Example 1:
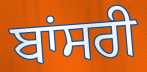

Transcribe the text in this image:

ਬਾਂਸਰੀ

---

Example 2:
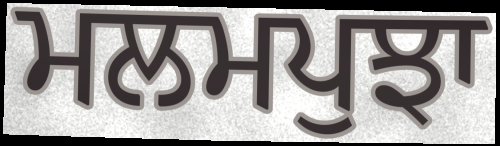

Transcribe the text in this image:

ਮਲਮਪੁਝਾ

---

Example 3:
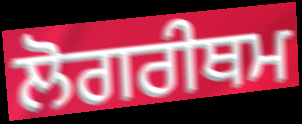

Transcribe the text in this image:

ਲੋਗਰੀਥਮ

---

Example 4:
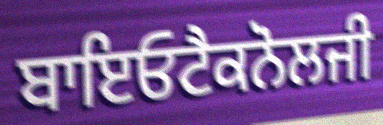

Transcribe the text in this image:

ਬਾਇਓਟੈਕਨੋਲਜੀ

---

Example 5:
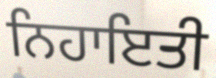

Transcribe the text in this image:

ਨਿਹਾਇਤੀ